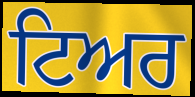
ਟਿਅਰ